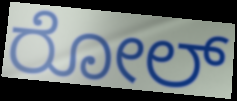
ರೋಲ್